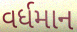
વર્ધમાન